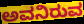
ಅವನಿರುವ